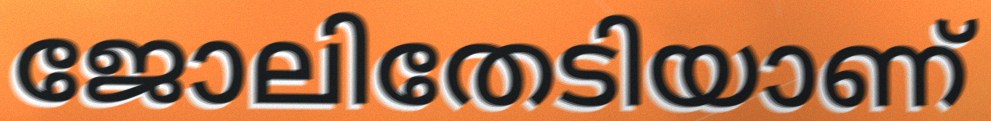
ജോലിതേടിയാണ്